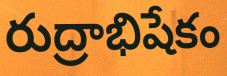
రుద్రాభిషేకం